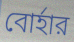
বোর্হার